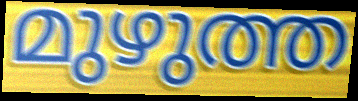
മുഴുത്ത